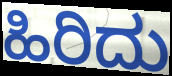
ಹಿರಿದು